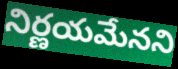
నిర్ణయమేనని